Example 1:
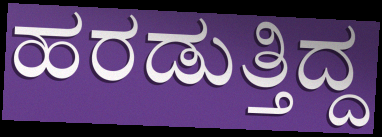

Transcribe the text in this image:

ಹರಡುತ್ತಿದ್ದ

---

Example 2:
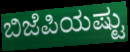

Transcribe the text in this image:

ಬಿಜೆಪಿಯಷ್ಟು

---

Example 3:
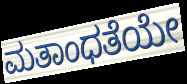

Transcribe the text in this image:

ಮತಾಂಧತೆಯೇ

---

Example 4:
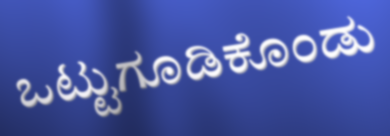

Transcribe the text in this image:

ಒಟ್ಟುಗೂಡಿಕೊಂಡು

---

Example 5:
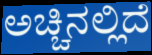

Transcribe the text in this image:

ಅಚ್ಚಿನಲ್ಲಿದೆ